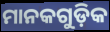
ମାନକଗୁଡ଼ିକ